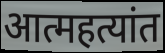
आत्महत्यांत